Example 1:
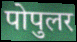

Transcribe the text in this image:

पोपुलर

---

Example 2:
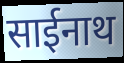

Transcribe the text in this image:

साईनाथ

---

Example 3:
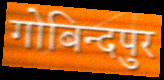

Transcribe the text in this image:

गोबिन्दपुर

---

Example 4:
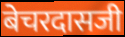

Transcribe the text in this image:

बेचरदासजी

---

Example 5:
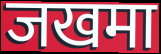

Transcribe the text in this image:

जखमा